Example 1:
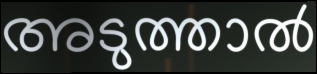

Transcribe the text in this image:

അടുത്താൽ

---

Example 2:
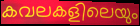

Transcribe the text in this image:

കവലകളിലെയും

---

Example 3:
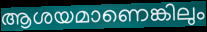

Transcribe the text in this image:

ആശയമാണെങ്കിലും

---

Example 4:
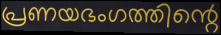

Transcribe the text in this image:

പ്രണയഭംഗത്തിന്റെ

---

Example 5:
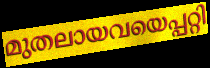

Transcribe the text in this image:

മുതലായവയെപ്പറ്റി